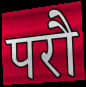
परौ